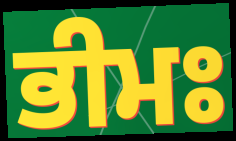
ਭੀਮਃ